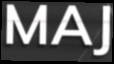
MAJ